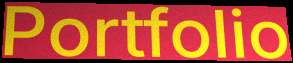
Portfolio